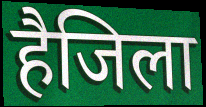
हैजिला